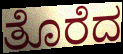
ತೊರೆದ